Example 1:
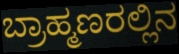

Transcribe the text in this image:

ಬ್ರಾಹ್ಮಣರಲ್ಲಿನ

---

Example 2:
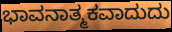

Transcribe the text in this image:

ಭಾವನಾತ್ಮಕವಾದುದು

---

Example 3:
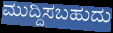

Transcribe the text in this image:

ಮುದ್ದಿಸಬಹುದು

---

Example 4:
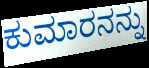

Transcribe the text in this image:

ಕುಮಾರನನ್ನು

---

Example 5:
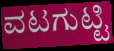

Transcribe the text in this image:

ವಟಗುಟ್ಟಿ